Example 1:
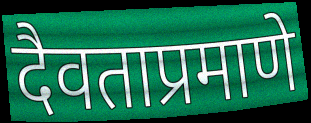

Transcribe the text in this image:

दैवताप्रमाणे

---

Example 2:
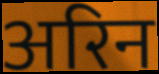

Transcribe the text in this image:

अरिन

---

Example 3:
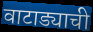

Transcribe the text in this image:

वाटाड्याची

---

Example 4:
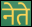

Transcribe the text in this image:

नेते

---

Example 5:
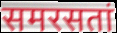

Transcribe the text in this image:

समरसतां